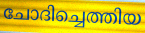
ചോദിച്ചെത്തിയ